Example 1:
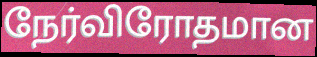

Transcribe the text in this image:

நேர்விரோதமான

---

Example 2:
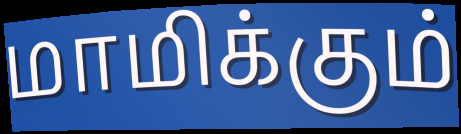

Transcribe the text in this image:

மாமிக்கும்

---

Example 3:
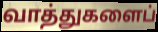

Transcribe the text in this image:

வாத்துகளைப்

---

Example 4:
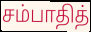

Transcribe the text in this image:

சம்பாதித்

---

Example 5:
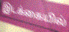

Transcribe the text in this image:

இடக்கையில்